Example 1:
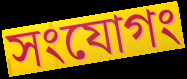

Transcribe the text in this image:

সংযোগং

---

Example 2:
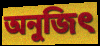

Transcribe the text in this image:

অনুজিৎ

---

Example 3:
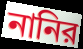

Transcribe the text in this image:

নানির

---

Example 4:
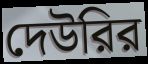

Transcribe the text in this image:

দেউরির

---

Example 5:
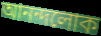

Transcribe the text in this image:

আনন্দলোক